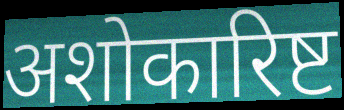
अशोकारिष्ट